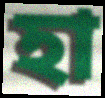
হা